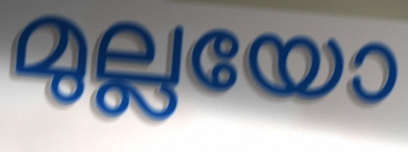
മുല്ലയോ